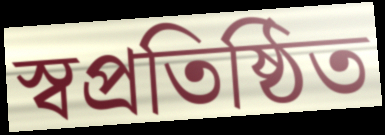
স্বপ্রতিষ্ঠিত